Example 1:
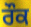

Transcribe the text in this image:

ਰੌਕ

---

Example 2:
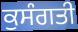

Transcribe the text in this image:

ਕੁਸੰਗਤੀ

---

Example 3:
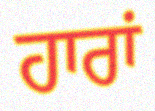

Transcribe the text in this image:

ਹਾਰਾਂ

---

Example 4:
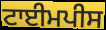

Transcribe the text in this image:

ਟਾਈਮਪੀਸ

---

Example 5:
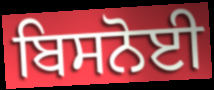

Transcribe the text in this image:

ਬਿਸਨੋਈ